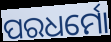
ପରଧର୍ମୋ